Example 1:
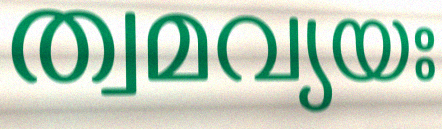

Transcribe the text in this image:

ത്വമവ്യയഃ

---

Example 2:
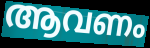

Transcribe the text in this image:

ആവണം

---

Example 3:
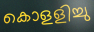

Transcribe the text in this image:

കൊളളിച്ചു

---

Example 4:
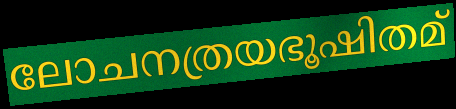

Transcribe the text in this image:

ലോചനത്രയഭൂഷിതമ്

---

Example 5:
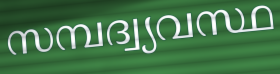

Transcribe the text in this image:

സമ്പദ്വ്യവസ്ഥ